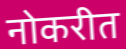
नोकरीत